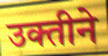
उक्तीने